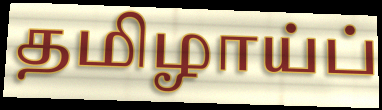
தமிழாய்ப்